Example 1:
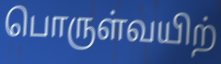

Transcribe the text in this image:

பொருள்வயிற்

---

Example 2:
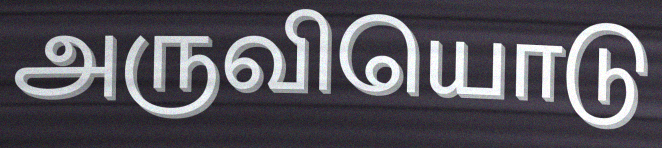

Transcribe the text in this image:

அருவியொடு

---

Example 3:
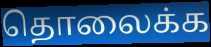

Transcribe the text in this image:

தொலைக்க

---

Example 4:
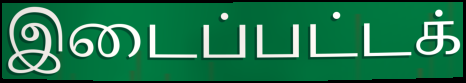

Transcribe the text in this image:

இடைப்பட்டக்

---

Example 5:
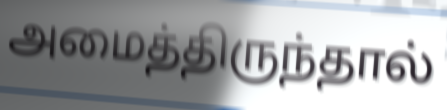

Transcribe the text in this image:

அமைத்திருந்தால்